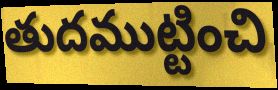
తుదముట్టించి